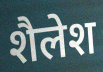
शैलेश